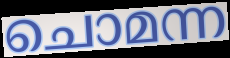
ചൊമന്ന